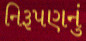
નિરૂપણનું